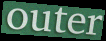
outer